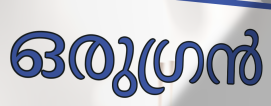
ഒരുഗ്രൻ